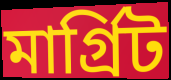
মাৰ্গ্ৰিট